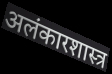
अलंकारशास्त्र